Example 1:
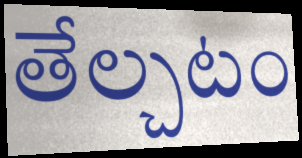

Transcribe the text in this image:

తేల్చటం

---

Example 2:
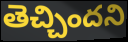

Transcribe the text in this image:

తెచ్చిందని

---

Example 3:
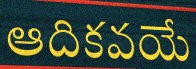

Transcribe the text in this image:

ఆదికవయే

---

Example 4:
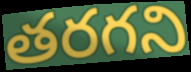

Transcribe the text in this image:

తరగని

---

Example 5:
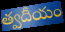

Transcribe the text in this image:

త్వదీయం